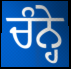
ਚੰਨ੍ਹੇ